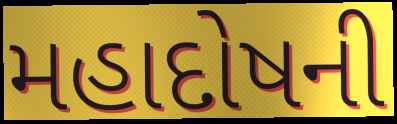
મહાદોષની